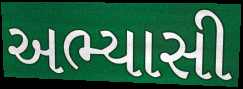
અભ્યાસી